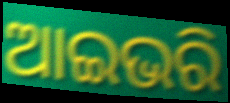
ଆଇଭରି